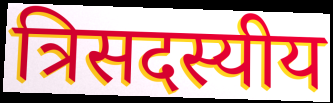
त्रिसदस्यीय